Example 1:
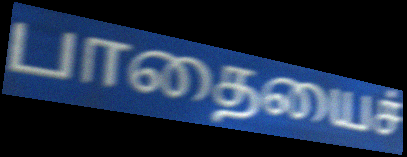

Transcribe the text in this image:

பாதையைச்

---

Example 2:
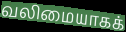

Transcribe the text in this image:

வலிமையாகக்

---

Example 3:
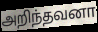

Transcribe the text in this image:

அறிந்தவனா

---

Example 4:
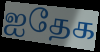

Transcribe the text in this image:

ஐதேக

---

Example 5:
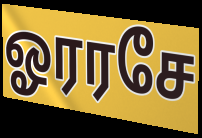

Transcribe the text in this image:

ஓரரசே